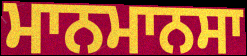
ਮਾਨਮਾਨਸਾ